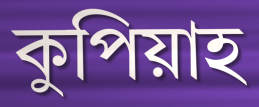
কুপিয়াহ